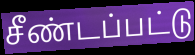
சீண்டப்பட்டு